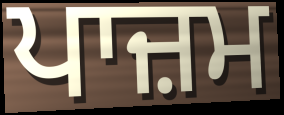
ਪਾਜ਼ਮ